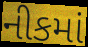
નીકમાં